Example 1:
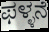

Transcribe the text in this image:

ಫಳ್ಳನೆ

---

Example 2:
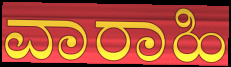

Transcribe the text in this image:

ವಾರಾಹಿ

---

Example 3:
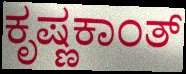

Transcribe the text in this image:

ಕೃಷ್ಣಕಾಂತ್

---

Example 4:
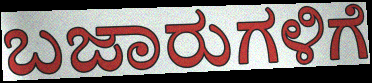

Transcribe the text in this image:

ಬಜಾರುಗಳಿಗೆ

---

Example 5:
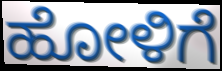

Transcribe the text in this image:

ಹೋಳಿಗೆ